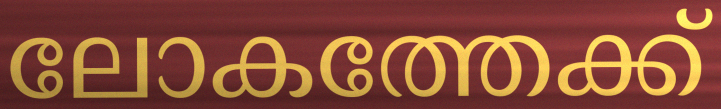
ലോകത്തേക്ക്